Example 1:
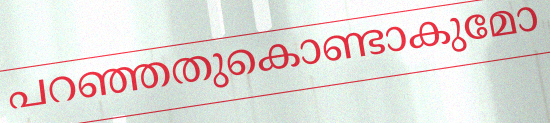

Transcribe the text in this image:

പറഞ്ഞതുകൊണ്ടാകുമോ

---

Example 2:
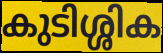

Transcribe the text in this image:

കുടിശ്ശിക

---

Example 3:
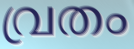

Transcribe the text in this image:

വ്രതം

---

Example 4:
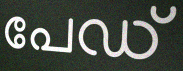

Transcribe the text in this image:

പേഡ്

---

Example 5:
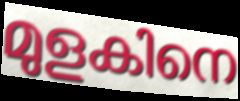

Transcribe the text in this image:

മുളകിനെ